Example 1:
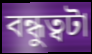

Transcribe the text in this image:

বন্ধুত্বটা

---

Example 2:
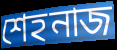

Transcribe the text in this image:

শেহনাজ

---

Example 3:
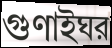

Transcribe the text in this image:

গুণাইঘর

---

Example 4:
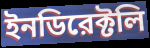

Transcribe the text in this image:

ইনডিরেক্টলি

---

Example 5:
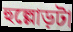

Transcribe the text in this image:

হুল্লোড়টা